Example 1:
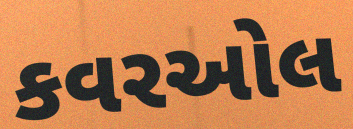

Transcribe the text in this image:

કવરઓલ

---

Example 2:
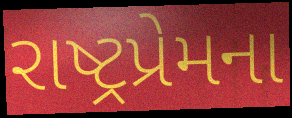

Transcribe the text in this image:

રાષ્ટ્રપ્રેમના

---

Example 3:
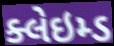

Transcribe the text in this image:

ક્લેઇમ્ડ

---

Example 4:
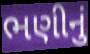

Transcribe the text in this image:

ભણીનું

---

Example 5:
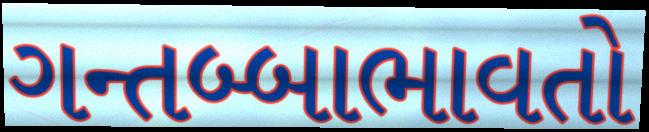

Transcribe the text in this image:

ગન્તબ્બાભાવતો